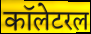
कॉलेटरल